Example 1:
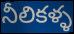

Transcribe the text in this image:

నీలికళ్ళ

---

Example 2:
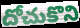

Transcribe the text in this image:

దోచుకొని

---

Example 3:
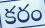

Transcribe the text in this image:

కరం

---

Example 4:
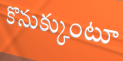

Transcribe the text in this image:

కొనుక్కుంటూ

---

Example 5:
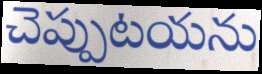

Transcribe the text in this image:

చెప్పుటయను